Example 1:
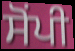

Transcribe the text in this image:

ਸੋੰਪੀ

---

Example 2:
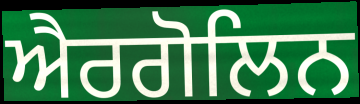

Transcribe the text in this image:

ਐਰਗੋਲਿਨ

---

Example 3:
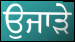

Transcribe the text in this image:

ਉਜਾੜੇ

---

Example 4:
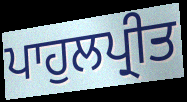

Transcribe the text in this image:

ਪਾਹੁਲਪ੍ਰੀਤ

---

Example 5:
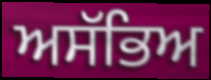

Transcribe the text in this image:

ਅਸੱਭਿਅ